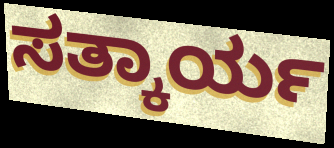
ಸತ್ಕಾರ್ಯ